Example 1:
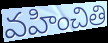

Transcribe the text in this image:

వహించితి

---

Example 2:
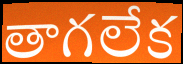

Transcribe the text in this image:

తాగలేక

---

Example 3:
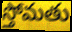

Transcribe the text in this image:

స్తోమతు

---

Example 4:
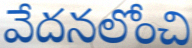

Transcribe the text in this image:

వేదనలోంచి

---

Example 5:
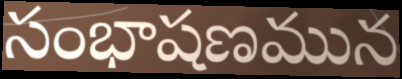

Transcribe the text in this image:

సంభాషణమున